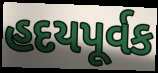
હદયપૂર્વક